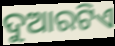
ଦୁଆରଟିଏ